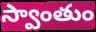
స్వాంతుం